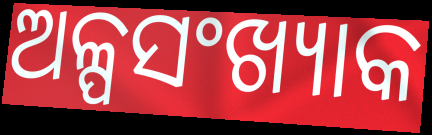
ଅଳ୍ପସଂଖ୍ୟାକ